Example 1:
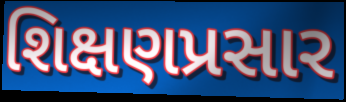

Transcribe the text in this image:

શિક્ષણપ્રસાર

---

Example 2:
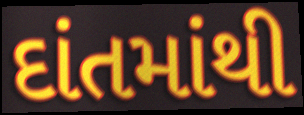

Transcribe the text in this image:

દાંતમાંથી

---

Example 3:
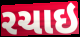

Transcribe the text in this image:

રચાઇ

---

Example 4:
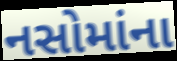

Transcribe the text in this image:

નસોમાંના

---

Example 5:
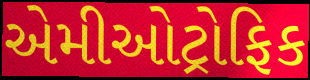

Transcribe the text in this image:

એમીઓટ્રોફિક